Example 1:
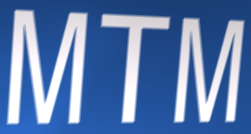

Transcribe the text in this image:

MTM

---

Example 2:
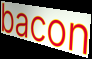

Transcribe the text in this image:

bacon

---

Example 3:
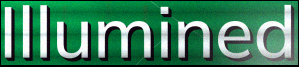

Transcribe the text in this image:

Illumined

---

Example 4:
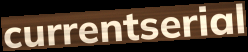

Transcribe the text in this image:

currentserial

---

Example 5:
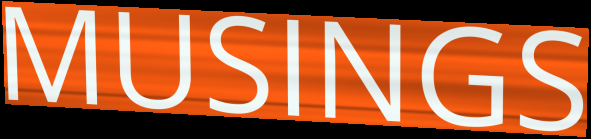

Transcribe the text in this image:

MUSINGS